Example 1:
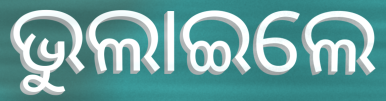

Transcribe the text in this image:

ଭୁଲାଇଲେ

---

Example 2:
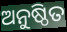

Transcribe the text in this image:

ଅନୁଷ୍ଠିତ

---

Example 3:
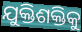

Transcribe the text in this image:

ଯୁକ୍ତିଶକ୍ତିକୁ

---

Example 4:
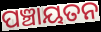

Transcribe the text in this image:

ପଞ୍ଚାୟତନ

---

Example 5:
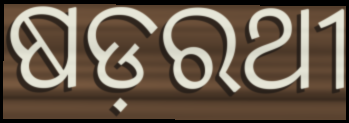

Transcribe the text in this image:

ଷଡ଼ରଥୀ